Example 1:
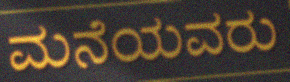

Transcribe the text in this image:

ಮನೆಯವರು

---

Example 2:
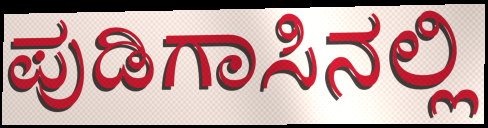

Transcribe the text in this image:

ಪುಡಿಗಾಸಿನಲ್ಲಿ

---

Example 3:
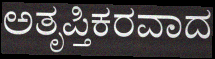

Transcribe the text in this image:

ಅತೃಪ್ತಿಕರವಾದ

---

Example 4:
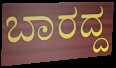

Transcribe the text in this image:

ಬಾರದ್ದ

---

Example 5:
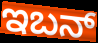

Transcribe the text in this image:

ಇಬನ್